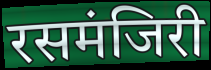
रसमंजिरी